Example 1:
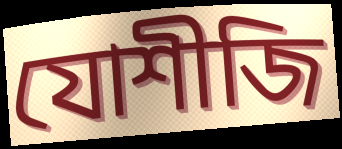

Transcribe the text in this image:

যোশীজি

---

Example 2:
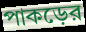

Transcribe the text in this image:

পাকড়ের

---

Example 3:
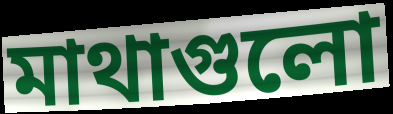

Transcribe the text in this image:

মাথাগুলো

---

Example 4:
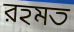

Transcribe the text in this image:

রহমত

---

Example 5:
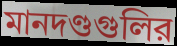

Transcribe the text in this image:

মানদণ্ডগুলির